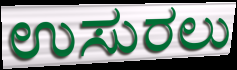
ಉಸುರಲು